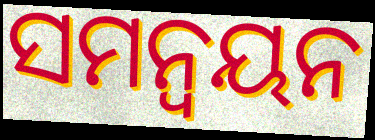
ସମନ୍ୱୟନ